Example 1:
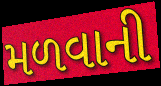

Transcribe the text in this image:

મળવાની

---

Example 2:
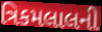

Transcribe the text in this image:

ત્રિકમલાલની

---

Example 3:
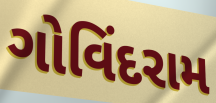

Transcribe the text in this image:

ગોવિંદરામ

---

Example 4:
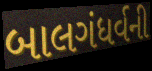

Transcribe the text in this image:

બાલગંધર્વની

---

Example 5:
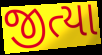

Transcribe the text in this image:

જીત્યા